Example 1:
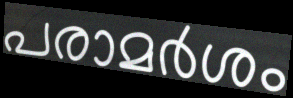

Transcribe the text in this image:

പരാമർശം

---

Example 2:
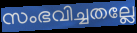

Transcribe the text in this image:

സംഭവിച്ചതല്ലേ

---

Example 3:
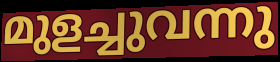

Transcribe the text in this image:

മുളച്ചുവന്നു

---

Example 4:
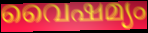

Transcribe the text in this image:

വൈഷമ്യം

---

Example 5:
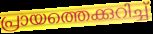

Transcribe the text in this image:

പ്രായത്തെക്കുറിച്ച്